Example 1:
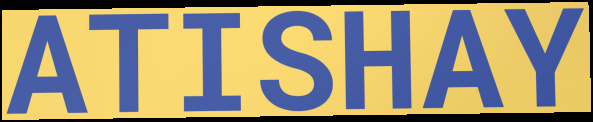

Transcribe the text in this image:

ATISHAY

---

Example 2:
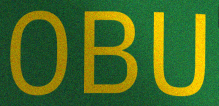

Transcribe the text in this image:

OBU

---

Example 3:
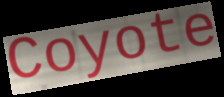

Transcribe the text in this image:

Coyote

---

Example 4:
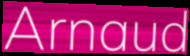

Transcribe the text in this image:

Arnaud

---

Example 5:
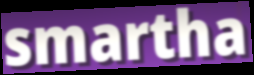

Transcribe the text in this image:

smartha